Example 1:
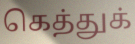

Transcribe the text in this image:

கெத்துக்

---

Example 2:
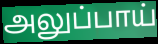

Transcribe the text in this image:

அலுப்பாய்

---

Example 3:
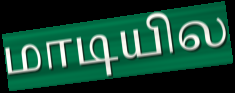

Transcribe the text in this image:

மாடியில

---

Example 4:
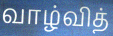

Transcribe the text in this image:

வாழ்வித்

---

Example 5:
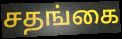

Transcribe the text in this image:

சதங்கை